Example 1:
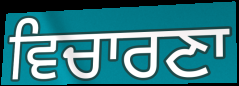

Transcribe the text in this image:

ਵਿਚਾਰਣਾ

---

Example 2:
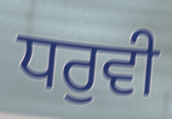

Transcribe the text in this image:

ਧਰੁਵੀ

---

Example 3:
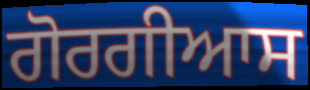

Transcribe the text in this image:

ਗੋਰਗੀਆਸ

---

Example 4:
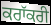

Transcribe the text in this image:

ਕਰਾੱਕਰੀ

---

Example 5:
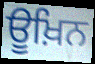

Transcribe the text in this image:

ਊਖ਼ਿਨ